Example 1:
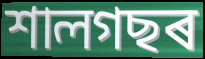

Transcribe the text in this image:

শালগছৰ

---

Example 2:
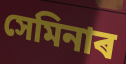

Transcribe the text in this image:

সেমিনাৰ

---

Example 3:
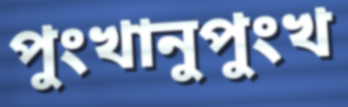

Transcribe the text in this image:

পুংখানুপুংখ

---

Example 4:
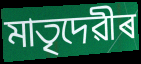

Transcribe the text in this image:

মাতৃদেৱীৰ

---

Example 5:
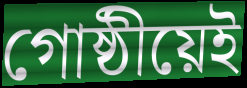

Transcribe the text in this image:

গোষ্ঠীয়েই